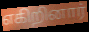
எகிறினார்